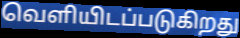
வெளியிடப்படுகிறது